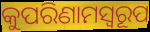
କୁପରିଣାମସ୍ୱରୂପ